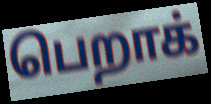
பெறாக்